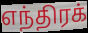
எந்திரக்